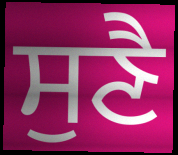
ਸੁਣੈ